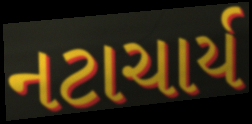
નટાચાર્ય